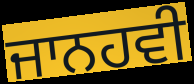
ਜਾਨਹਵੀ